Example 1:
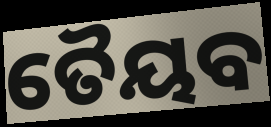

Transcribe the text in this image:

ତୈୟବ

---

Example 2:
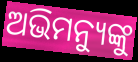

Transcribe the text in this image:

ଅଭିମନ୍ୟୁଙ୍କୁ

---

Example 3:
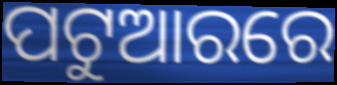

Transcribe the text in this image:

ପଟୁଆରରେ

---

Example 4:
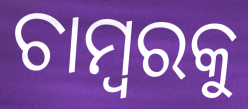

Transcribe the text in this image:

ଚାମ୍ବରକୁ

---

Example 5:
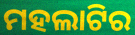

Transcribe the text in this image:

ମହଲାଟିର